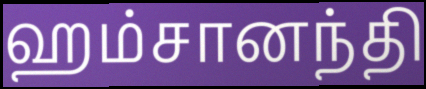
ஹம்சானந்தி